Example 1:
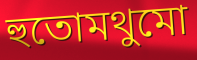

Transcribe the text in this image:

হুতোমথুমো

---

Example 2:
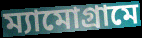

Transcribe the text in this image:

ম্যামোগ্রামে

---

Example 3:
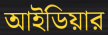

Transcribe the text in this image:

আইডিয়ার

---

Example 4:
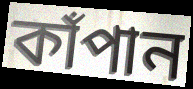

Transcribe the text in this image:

কাঁপান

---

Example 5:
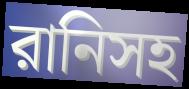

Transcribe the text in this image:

রানিসহ